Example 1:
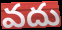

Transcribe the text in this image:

వదు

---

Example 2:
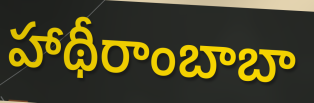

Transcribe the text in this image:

హాథీరాంబాబా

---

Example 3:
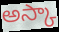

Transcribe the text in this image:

అస్కా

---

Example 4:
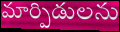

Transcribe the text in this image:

మార్పిడులను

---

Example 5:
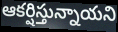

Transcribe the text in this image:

ఆకర్షిస్తున్నాయని